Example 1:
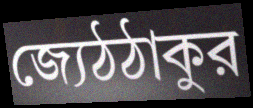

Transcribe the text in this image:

জ্যেঠঠাকুর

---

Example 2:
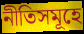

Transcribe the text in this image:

নীতিসমূহে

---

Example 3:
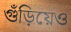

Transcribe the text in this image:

গুঁড়িয়েও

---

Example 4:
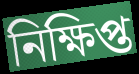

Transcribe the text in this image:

নিক্ষিপ্ত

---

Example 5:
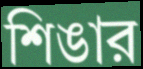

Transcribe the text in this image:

শিঙার